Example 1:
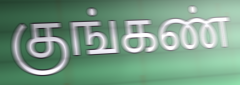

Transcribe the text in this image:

குங்கண்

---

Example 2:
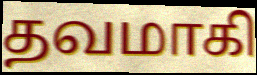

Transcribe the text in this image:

தவமாகி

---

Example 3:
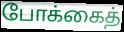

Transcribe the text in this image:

போக்கைத்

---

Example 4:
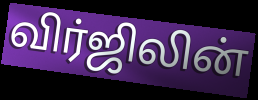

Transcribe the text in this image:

விர்ஜிலின்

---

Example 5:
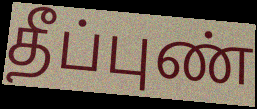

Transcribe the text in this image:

தீப்புண்